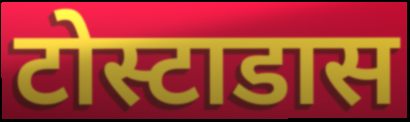
टोस्टाडास